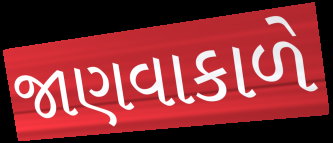
જાણવાકાળે